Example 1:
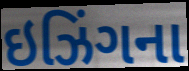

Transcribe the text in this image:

ઇઝિંગના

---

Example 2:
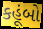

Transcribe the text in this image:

કહૂંબો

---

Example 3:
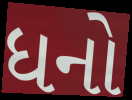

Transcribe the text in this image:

ધનો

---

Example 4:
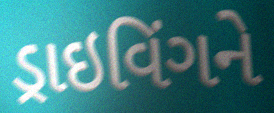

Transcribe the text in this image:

ડ્રાઇવિંગને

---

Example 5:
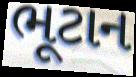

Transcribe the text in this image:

ભૂટાન